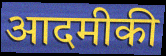
आदमीकी